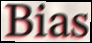
Bias